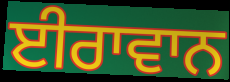
ਈਰਾਵਾਨ